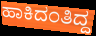
ಹಾಕಿದಂತಿದ್ದ